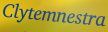
Clytemnestra